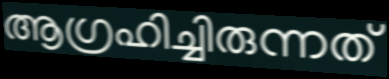
ആഗ്രഹിച്ചിരുന്നത്